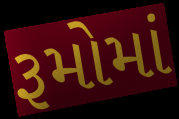
રૂમોમાં